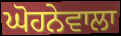
ਘੋਹਨੇਵਾਲਾ